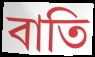
বাতি